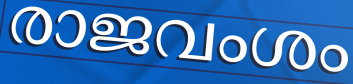
രാജവംശം